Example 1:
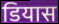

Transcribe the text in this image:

डियास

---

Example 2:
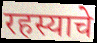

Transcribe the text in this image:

रहस्याचे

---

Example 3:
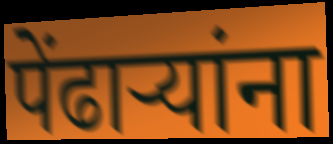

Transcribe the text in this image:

पेंढाऱ्यांना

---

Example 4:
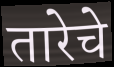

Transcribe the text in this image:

तारेचे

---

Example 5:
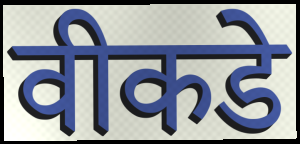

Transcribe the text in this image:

वीकडे